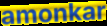
amonkar